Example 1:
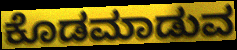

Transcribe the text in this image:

ಕೊಡಮಾಡುವ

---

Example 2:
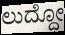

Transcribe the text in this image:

ಲುದ್ದೋ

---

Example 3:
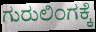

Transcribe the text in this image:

ಗುರುಲಿಂಗಕ್ಕೆ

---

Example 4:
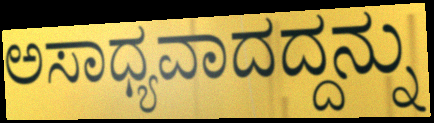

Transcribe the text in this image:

ಅಸಾಧ್ಯವಾದದ್ದನ್ನು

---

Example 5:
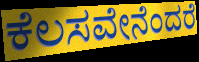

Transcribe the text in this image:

ಕೆಲಸವೇನೆಂದರೆ